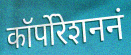
कॉर्पोरेशननं